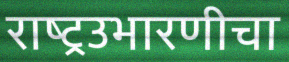
राष्ट्रउभारणीचा